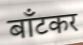
बाँटकर